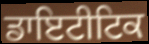
ਡਾਇਟੀਟਿਕ